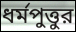
ধর্মপুত্তুর